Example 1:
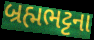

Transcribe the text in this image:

બ્રહ્મભટ્ટના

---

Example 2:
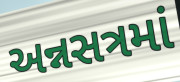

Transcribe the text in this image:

અન્નસત્રમાં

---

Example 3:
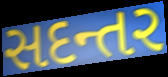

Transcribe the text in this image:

સદન્તર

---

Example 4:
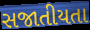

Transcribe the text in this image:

સજાતીયતા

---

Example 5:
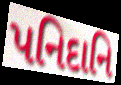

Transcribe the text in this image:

પનિદાનિ